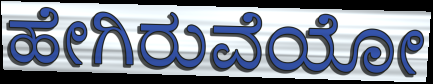
ಹೇಗಿರುವೆಯೋ